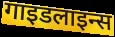
गाइडलाइन्स